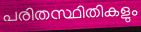
പരിതസ്ഥിതികളും